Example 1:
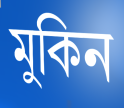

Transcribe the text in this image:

মুকিন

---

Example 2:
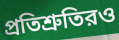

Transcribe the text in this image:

প্রতিশ্রুতিরও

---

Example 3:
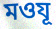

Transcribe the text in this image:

মওযূ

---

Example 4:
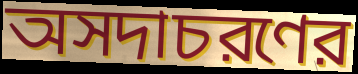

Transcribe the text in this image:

অসদাচরণের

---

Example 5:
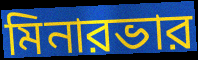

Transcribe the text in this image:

মিনারভার